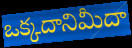
ఒక్కదానిమీదా